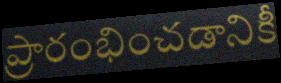
ప్రారంభించడానికీ